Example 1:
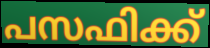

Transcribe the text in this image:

പസഫിക്ക്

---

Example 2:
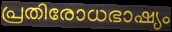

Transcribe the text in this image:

പ്രതിരോധഭാഷ്യം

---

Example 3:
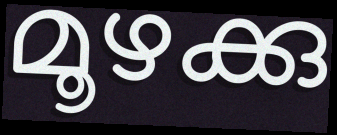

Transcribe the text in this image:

മൂഴക്കു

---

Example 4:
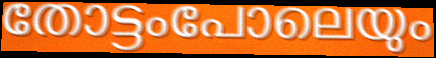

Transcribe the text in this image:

തോട്ടംപോലെയും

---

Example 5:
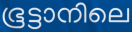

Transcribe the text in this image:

ഭൂട്ടാനിലെ